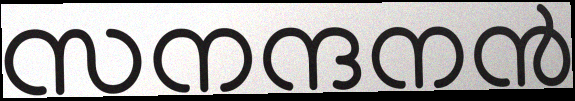
സനന്ദനൻ